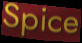
Spice